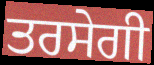
ਤਰਸੇਗੀ